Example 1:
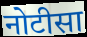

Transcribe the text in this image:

नोटीसा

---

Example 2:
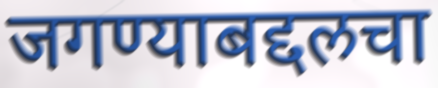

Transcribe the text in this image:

जगण्याबद्दलचा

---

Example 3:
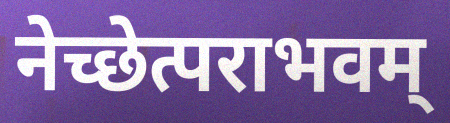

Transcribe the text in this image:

नेच्छेत्पराभवम्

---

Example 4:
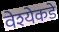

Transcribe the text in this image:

वेश्येकडे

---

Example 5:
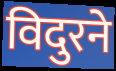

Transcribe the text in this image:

विदुरने